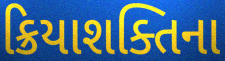
ક્રિયાશક્તિના